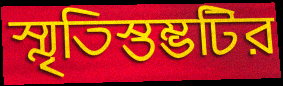
স্মৃতিস্তম্ভটির